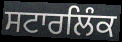
ਸਟਾਰਲਿੰਕ